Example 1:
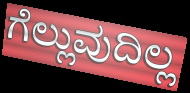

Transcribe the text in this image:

ಗೆಲ್ಲುವುದಿಲ್ಲ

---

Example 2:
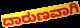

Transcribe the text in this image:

ದಾರುಣವಾಗಿ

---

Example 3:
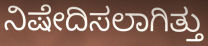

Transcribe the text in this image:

ನಿಷೇದಿಸಲಾಗಿತ್ತು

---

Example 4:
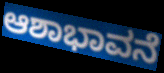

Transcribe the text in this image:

ಆಶಾಭಾವನೆ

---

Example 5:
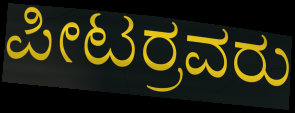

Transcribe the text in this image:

ಪೀಟರ್‍ರವರು